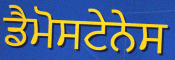
ਡੈਮੋਸਟੇਨੇਸ